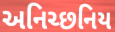
અનિચ્છનિય